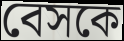
বেসকে